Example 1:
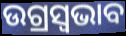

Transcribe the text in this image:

ଉଗ୍ରସ୍ୱଭାବ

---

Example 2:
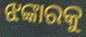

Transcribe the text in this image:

ଝଙ୍କାରକୁ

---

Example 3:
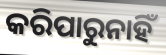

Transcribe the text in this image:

କରିପାରୁନାହିଁ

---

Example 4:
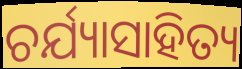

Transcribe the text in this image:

ଚର୍ଯ୍ୟାସାହିତ୍ୟ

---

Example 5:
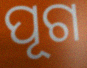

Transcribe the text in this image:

ପୂଗ